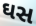
ઘસ